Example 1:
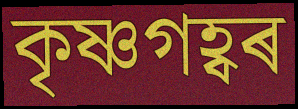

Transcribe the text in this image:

কৃষ্ণগহ্বৰ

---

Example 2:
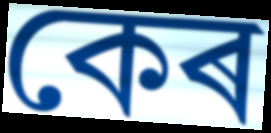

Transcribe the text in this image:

কেৰ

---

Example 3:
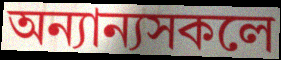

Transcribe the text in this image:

অন্যান্যসকলে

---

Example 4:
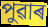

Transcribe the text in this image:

পুৱাৰ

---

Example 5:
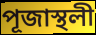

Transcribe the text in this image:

পূজাস্থলী